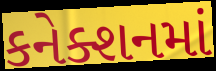
કનેક્શનમાં